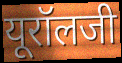
यूरॉलजी